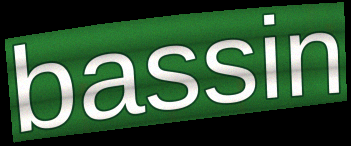
bassin